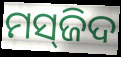
ମସ୍‌ଜିଦ